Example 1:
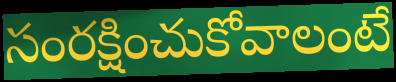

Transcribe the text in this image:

సంరక్షించుకోవాలంటే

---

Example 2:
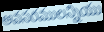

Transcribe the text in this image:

అవసరములన్నియు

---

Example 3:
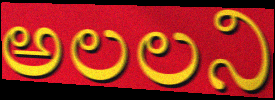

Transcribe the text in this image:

అలలని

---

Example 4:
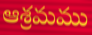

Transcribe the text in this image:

ఆశ్రమము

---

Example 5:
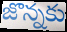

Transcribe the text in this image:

జొన్నకు